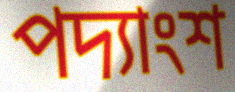
পদ্যাংশ